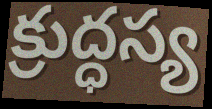
క్రుద్ధస్య